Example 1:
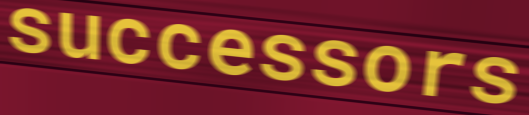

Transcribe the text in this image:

successors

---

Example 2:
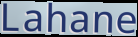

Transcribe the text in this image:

Lahane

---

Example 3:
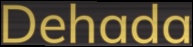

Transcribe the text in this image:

Dehada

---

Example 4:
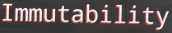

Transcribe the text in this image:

Immutability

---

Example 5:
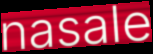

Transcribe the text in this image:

nasale